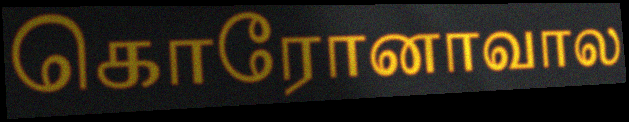
கொரோனாவால